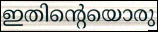
ഇതിന്റെയൊരു